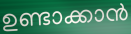
ഉണ്ടാക്കാൻ